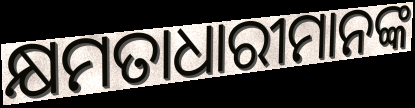
କ୍ଷମତାଧାରୀମାନଙ୍କ